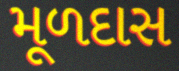
મૂળદાસ